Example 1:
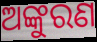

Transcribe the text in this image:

ଅଙ୍କୁରଣ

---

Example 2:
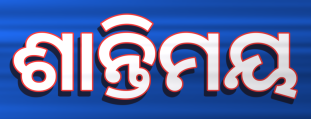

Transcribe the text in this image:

ଶାନ୍ତିମୟ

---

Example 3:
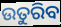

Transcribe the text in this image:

ଉତୁରିବ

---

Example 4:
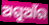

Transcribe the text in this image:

ଅଗୁଆଁର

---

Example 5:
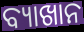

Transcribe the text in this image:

ବ୍ୟାଖାନ